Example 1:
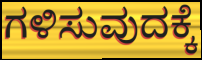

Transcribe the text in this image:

ಗಳಿಸುವುದಕ್ಕೆ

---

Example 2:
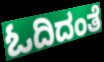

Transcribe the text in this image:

ಓದಿದಂತೆ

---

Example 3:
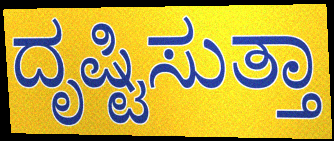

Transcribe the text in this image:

ದೃಷ್ಟಿಸುತ್ತಾ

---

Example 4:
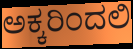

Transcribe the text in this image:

ಅಕ್ಕರಿಂದಲಿ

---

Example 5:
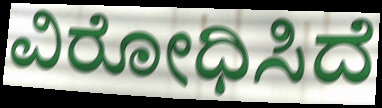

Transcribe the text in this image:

ವಿರೋಧಿಸಿದೆ